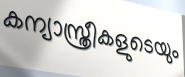
കന്യാസ്ത്രീകളുടെയും